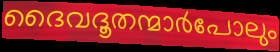
ദൈവദൂതന്മാർപോലും